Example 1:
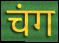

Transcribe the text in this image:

चंग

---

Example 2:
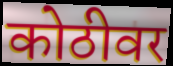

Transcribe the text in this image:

कोठीवर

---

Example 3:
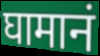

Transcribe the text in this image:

घामानं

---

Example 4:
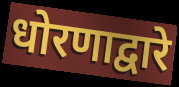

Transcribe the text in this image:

धोरणाद्वारे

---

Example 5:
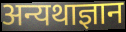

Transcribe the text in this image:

अन्यथाज्ञान